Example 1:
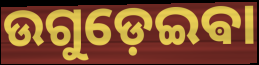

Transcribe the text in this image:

ଉଗୁଡ଼େଇଵା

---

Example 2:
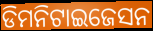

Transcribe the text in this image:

ଡିମନିଟାଇଜେସନ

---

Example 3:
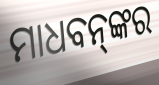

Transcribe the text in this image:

ମାଧବନ୍‌ଙ୍କର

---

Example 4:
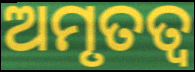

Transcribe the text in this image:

ଅମୃତତ୍ବ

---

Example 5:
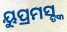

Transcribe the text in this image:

ୟୁପ୍ରମସ୍ଙ୍କ